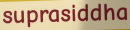
suprasiddha